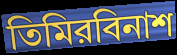
তিমিরবিনাশ